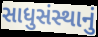
સાધુસંસ્થાનું